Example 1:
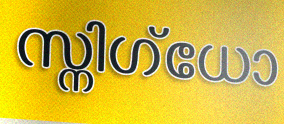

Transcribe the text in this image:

സ്നിഗ്ധോ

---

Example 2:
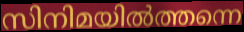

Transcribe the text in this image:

സിനിമയിൽത്തന്നെ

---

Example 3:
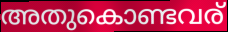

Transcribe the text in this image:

അതുകൊണ്ടവര്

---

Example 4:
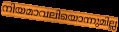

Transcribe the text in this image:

നിയമാവലിയൊന്നുമില്ല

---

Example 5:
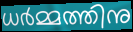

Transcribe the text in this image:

ധർമ്മത്തിനു